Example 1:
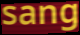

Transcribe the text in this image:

sang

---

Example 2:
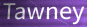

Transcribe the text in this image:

Tawney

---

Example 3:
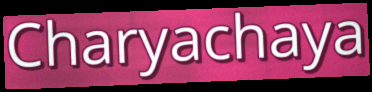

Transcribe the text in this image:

Charyachaya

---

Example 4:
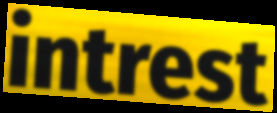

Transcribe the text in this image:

intrest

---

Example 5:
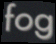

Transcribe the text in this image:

fog